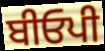
ਬੀਓਪੀ